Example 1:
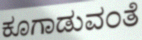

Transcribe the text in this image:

ಕೂಗಾಡುವಂತೆ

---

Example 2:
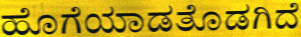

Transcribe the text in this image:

ಹೊಗೆಯಾಡತೊಡಗಿದೆ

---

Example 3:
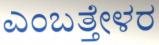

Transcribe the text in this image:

ಎಂಬತ್ತೇಳರ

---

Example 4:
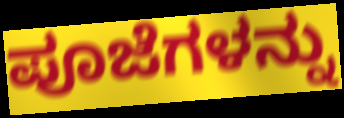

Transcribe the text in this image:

ಪೂಜೆಗಳನ್ನು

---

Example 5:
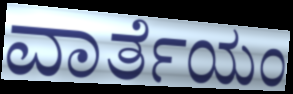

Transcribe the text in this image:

ವಾರ್ತೆಯಂ